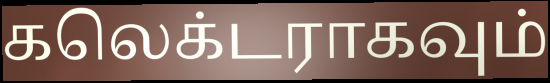
கலெக்டராகவும்